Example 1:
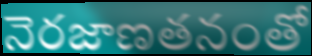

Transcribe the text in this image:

నెరజాణతనంతో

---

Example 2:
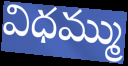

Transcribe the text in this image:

విధమ్ము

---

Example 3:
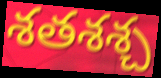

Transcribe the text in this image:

శతశశ్చ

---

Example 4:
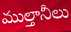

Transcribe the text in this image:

ముల్తానీలు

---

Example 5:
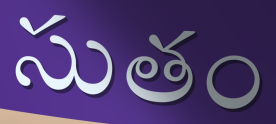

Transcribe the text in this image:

సుతం